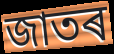
জাতৰ